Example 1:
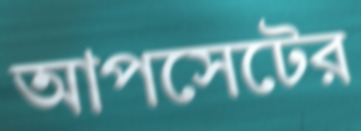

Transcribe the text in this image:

আপসেটের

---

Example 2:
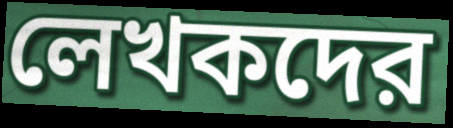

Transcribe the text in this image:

লেখকদের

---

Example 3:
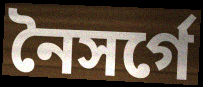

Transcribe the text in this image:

নৈসর্গে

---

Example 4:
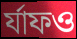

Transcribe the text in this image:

র্যাফও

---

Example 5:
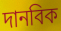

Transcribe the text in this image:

দানবিক